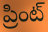
ప్రింట్